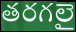
తరగలై